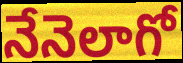
నేనెలాగో